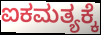
ಐಕಮತ್ಯಕ್ಕೆ